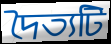
দৈত্যটি